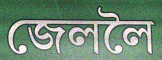
জেললৈ